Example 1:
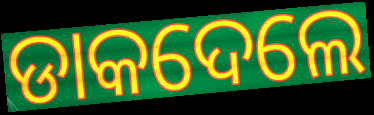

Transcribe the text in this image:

ଡାକଦେଲେ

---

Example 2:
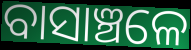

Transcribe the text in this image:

ବାସାଞ୍ଚଳେ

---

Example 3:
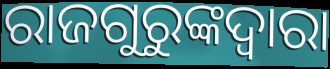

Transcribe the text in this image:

ରାଜଗୁରୁଙ୍କଦ୍ୱାରା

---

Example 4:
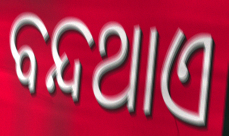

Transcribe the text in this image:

ବନ୍ଦଥାଏ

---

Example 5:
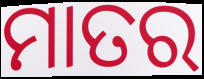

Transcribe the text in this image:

ମାତର